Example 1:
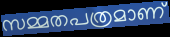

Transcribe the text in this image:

സമ്മതപത്രമാണ്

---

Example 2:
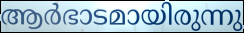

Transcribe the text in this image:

ആർഭാടമായിരുന്നു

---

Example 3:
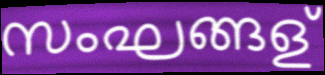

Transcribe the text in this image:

സംഘങ്ങള്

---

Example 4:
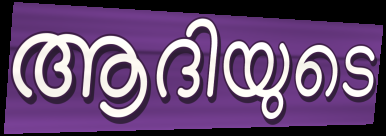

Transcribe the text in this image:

ആദിയുടെ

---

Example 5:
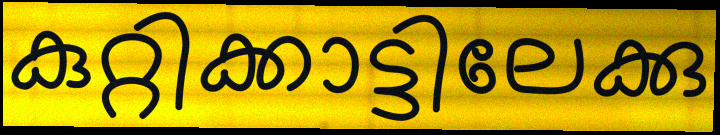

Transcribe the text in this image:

കുറ്റിക്കാട്ടിലേക്കു